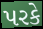
પરકે